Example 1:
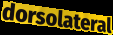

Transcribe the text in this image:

dorsolateral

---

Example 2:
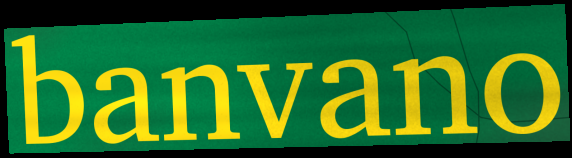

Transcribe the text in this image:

banvano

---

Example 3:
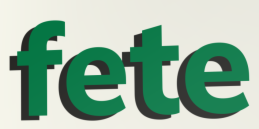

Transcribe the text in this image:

fete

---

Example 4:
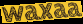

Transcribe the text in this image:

waxaa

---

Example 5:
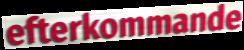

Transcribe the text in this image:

efterkommande